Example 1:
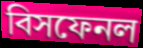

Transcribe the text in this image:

বিসফেনল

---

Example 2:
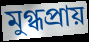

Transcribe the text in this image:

মুগ্ধপ্রায়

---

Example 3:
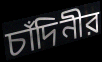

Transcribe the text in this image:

চাঁদিনীর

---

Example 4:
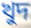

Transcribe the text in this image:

খুদ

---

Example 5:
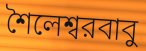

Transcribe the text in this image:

শৈলেশ্বরবাবু